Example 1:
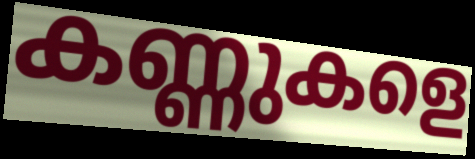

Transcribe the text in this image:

കണ്ണുകളെ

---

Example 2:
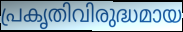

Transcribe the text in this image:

പ്രകൃതിവിരുദ്ധമായ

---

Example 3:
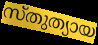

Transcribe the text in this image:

സ്തുത്യായ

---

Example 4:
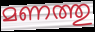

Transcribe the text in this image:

മണത്തു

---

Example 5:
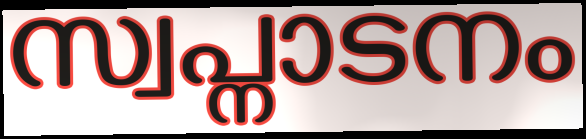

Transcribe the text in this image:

സ്വപ്നാടനം